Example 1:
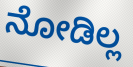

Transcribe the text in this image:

ನೋಡಿಲ್ಲ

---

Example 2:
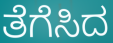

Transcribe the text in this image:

ತೆಗೆಸಿದ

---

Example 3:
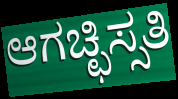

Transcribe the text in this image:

ಆಗಚ್ಛಿಸ್ಸತಿ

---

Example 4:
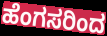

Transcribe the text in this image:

ಹೆಂಗಸರಿಂದ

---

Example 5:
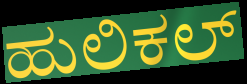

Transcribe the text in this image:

ಹುಲಿಕಲ್